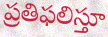
ప్రతిఫలిస్తూ